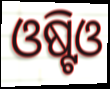
ଓଷ୍ଟିଓ